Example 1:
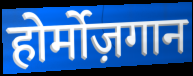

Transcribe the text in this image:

होर्मोज़गान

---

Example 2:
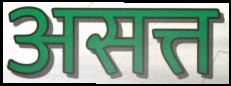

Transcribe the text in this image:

असत्त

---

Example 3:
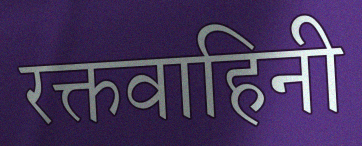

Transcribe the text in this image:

रक्तवाहिनी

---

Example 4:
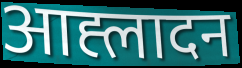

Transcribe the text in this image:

आह्लादन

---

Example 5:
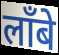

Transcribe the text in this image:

लाँबे